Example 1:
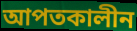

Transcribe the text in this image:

আপতকালীন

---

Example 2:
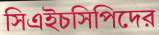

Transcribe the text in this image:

সিএইচসিপিদের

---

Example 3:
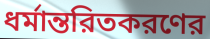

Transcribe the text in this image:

ধর্মান্তরিতকরণের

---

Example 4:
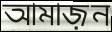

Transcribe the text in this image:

আমাজ়ন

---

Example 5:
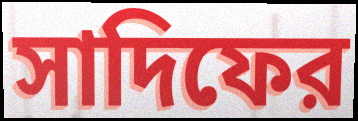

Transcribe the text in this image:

সাদিফের